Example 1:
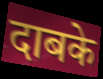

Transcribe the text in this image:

दाबके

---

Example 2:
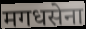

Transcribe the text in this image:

मगधसेना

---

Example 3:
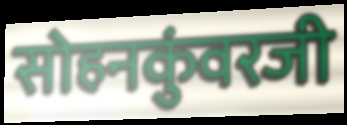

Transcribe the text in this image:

सोहनकुंवरजी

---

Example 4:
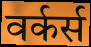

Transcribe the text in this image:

वर्कर्स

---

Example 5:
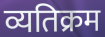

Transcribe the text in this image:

व्यतिक्रम